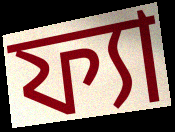
ফ্যা